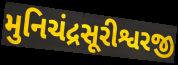
મુનિચંદ્રસૂરીશ્વરજી